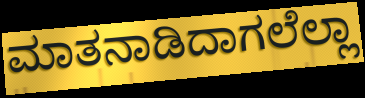
ಮಾತನಾಡಿದಾಗಲೆಲ್ಲಾ